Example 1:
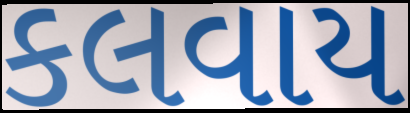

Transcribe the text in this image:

કલવાય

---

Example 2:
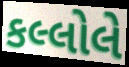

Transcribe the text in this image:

કલ્લોલે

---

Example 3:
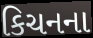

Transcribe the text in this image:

કિચનના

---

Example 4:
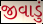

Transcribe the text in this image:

જીવાડું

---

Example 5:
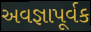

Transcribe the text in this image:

અવજ્ઞાપૂર્વક